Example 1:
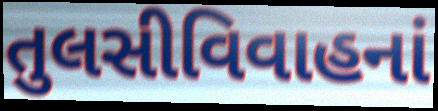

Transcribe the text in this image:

તુલસીવિવાહનાં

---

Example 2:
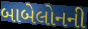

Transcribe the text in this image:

બાબેલોનની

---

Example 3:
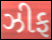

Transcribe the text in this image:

ઝીફ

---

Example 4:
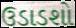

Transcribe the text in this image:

ઉડાડશો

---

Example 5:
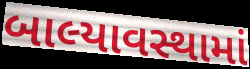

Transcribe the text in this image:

બાલ્યાવસ્થામાં